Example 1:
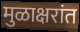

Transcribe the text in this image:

मुळाक्षरांत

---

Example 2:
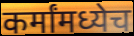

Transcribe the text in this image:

कर्मांमध्येच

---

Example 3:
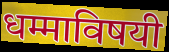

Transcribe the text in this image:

धम्माविषयी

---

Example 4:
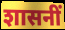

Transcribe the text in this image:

शासनीं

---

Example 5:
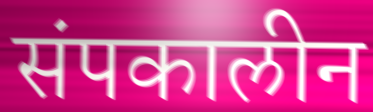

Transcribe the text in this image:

संपकालीन